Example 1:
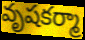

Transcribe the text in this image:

వృషకర్మా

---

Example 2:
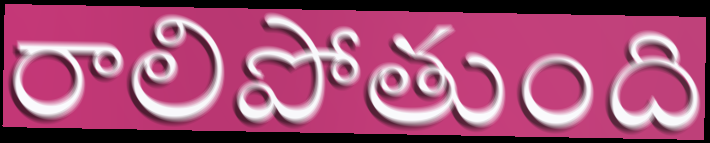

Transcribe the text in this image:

రాలిపోతుంది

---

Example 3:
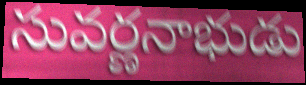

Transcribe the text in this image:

సువర్ణనాభుడు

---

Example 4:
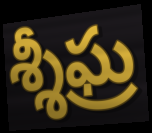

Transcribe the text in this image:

శ్శీఘ్ర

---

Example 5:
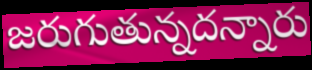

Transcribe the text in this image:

జరుగుతున్నదన్నారు